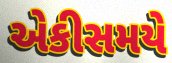
એકીસમયે